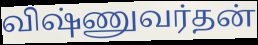
விஷ்ணுவர்தன்